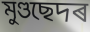
মুণ্ডছেদৰ